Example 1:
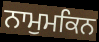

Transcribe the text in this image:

ਨਾਮੁਮਕਿਨ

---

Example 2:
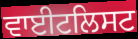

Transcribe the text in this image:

ਵਾਈਟਲਿਸਟ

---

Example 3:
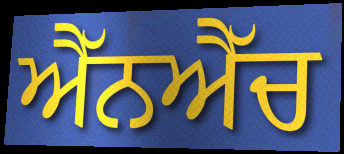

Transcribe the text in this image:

ਐੱਨਐੱਚ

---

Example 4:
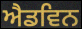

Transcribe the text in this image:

ਐਡਵਿਨ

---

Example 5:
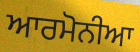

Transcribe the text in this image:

ਆਰਮੋਨੀਆ